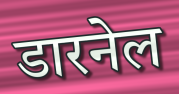
डारनेल